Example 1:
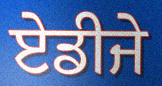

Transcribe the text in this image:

ਏਡੀਜੇ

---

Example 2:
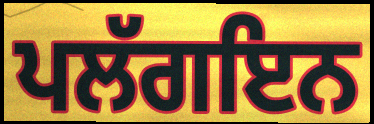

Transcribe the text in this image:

ਪਲੱਗਇਨ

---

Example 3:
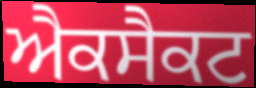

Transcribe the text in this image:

ਐਕਸੈਕਟ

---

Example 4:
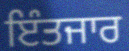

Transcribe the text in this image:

ਇੰਤਜਾਰ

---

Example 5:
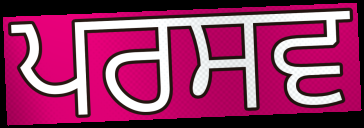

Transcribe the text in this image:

ਪਰਸਵ